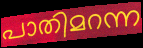
പാതിമറന്ന